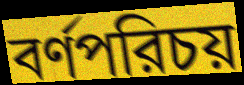
বর্ণপরিচয়